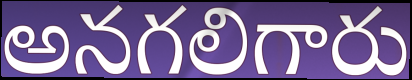
అనగలిగారు